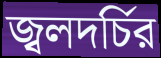
জ্বলদর্চির